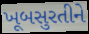
ખૂબસુરતીને